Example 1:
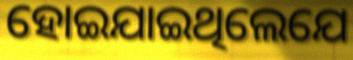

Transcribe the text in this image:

ହୋଇଯାଇଥିଲେଯେ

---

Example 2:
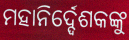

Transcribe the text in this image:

ମହାନିର୍ଦ୍ଦେଶକଙ୍କୁ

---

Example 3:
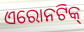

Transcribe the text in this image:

ଏରୋନଟିକ୍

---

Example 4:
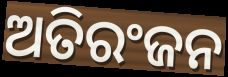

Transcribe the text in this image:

ଅତିରଂଜନ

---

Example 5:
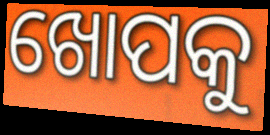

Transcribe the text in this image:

ଖୋପକୁ